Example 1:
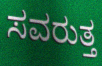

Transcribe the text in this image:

ಸವರುತ್ತ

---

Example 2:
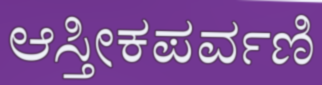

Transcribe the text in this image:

ಆಸ್ತೀಕಪರ್ವಣಿ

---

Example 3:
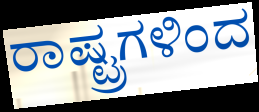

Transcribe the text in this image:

ರಾಷ್ಟ್ರಗಳಿಂದ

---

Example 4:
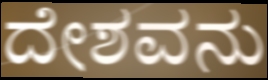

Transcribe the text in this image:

ದೇಶವನು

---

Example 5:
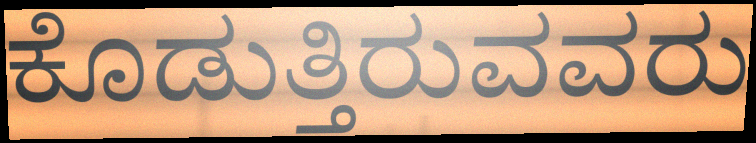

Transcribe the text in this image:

ಕೊಡುತ್ತಿರುವವರು